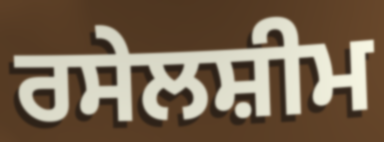
ਰਸੇਲਸ਼ੀਮ